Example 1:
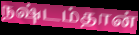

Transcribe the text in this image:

நஷ்டம்தான்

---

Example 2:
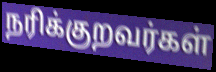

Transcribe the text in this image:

நரிக்குறவர்கள்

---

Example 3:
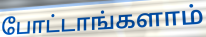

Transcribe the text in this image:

போட்டாங்களாம்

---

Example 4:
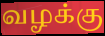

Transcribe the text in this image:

வழக்கு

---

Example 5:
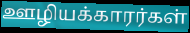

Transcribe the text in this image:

ஊழியக்காரர்கள்